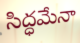
సిద్ధమేనా